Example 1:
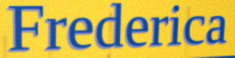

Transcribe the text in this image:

Frederica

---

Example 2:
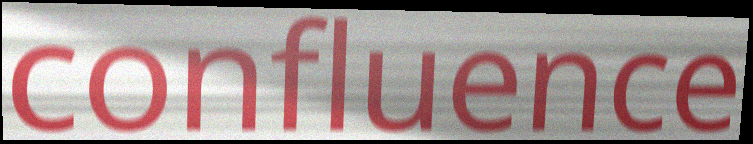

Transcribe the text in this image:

confluence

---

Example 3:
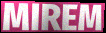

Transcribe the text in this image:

MIREM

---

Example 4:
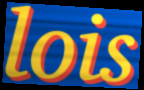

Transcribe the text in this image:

lois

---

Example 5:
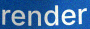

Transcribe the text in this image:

render